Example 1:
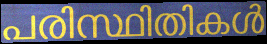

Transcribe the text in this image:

പരിസ്ഥിതികൾ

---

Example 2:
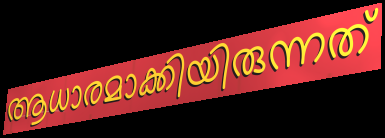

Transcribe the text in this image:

ആധാരമാക്കിയിരുന്നത്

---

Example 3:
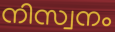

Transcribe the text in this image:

നിസ്വനം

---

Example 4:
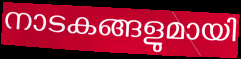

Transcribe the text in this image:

നാടകങ്ങളുമായി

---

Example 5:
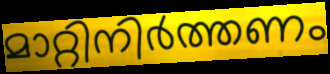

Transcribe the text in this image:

മാറ്റിനിർത്തണം